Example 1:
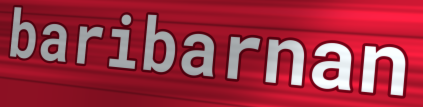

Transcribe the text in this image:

baribarnan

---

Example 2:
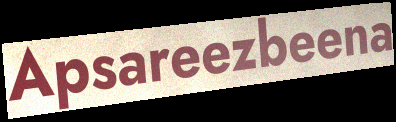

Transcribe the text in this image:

Apsareezbeena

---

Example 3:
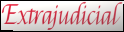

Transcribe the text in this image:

Extrajudicial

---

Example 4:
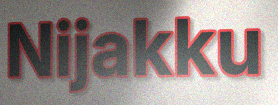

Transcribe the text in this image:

Nijakku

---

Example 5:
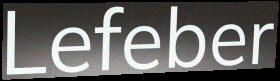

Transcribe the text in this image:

Lefeber